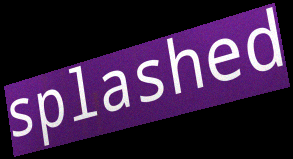
splashed